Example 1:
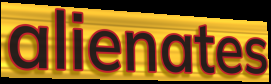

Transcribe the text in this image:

alienates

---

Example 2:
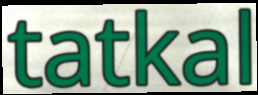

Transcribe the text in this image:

tatkal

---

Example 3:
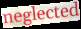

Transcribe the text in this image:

neglected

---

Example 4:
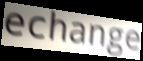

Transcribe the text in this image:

echange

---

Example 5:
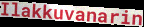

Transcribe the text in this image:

Ilakkuvanarin